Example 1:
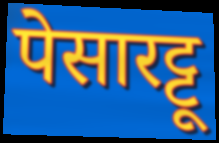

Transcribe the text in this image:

पेसारट्टू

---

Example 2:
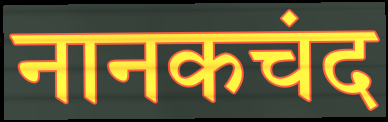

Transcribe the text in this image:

नानकचंद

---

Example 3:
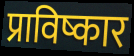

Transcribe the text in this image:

प्राविष्कार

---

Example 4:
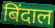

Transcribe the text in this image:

बिंदाल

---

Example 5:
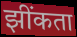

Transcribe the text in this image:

झींकता